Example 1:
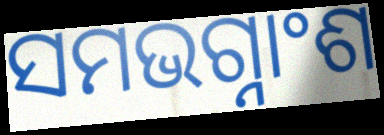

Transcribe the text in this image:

ସମଭଗ୍ନାଂଶ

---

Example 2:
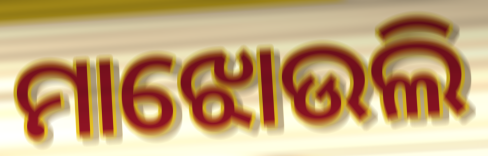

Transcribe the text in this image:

ମାଝୋଉଲି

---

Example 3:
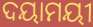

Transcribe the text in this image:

ଦୟାମୟୀ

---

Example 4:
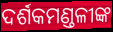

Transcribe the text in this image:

ଦର୍ଶକମଣ୍ଡଳୀଙ୍କ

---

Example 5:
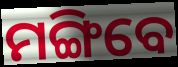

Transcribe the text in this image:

ମଙ୍ଗିବେ